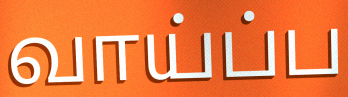
வாய்ப்ப